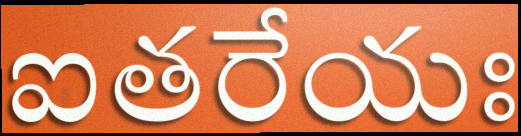
ఐతరేయః